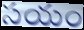
సయం